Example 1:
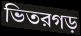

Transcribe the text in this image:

ভিতরগড়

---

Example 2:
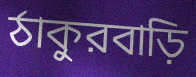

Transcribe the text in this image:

ঠাকুরবাড়ি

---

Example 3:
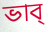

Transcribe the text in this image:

ভাব্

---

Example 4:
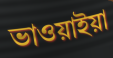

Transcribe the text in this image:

ভাওয়াইয়া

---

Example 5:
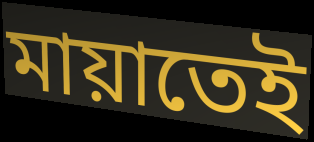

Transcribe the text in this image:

মায়াতেই